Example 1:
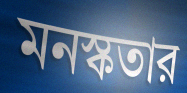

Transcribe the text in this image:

মনস্কতার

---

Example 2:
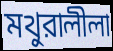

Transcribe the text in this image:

মথুরালীলা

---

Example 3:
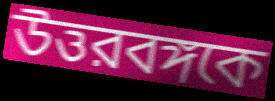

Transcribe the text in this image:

উত্তরবঙ্গকে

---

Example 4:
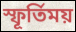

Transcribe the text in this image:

স্ফূর্তিময়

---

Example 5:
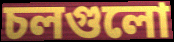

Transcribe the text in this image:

চলগুলো